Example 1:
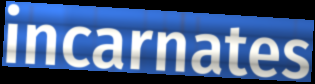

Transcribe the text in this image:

incarnates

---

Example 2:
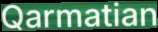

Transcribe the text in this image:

Qarmatian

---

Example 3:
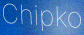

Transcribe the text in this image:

Chipko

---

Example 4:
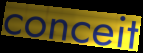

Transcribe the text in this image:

conceit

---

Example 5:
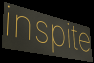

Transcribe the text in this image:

inspite